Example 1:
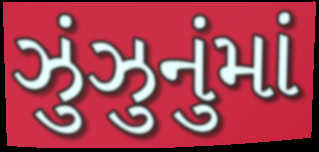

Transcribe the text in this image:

ઝુંઝુનુંમાં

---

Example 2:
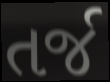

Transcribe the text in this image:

તર્જ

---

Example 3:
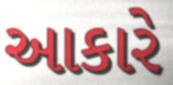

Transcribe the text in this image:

આકારે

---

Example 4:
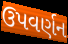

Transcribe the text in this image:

ઉપવર્ણન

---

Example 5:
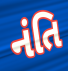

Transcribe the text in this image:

નંતિ